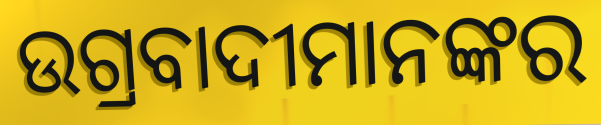
ଉଗ୍ରବାଦୀମାନଙ୍କର